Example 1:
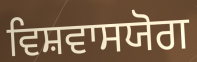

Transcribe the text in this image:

ਵਿਸ਼ਵਾਸਯੋਗ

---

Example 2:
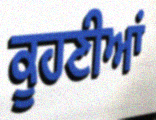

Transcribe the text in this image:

ਕੂਹਣੀਆਂ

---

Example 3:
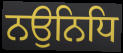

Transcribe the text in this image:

ਨਉਨਿਧਿ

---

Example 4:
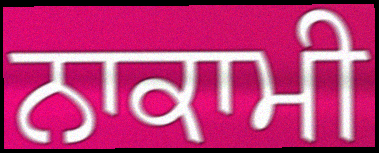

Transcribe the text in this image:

ਨਾਕਾਮੀ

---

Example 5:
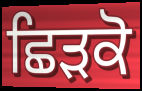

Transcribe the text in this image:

ਛਿੜਕੋ